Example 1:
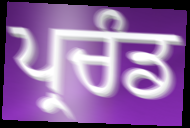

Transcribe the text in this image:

ਪ੍ਰਚੰਡ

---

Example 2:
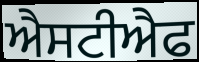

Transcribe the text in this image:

ਐਸਟੀਐਫ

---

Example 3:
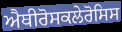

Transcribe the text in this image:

ਐਥੀਰੋਸਕਲੇਰੋਸਿਸ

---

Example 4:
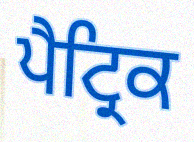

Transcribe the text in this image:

ਪੈਟ੍ਰਿਕ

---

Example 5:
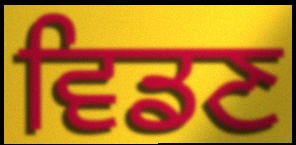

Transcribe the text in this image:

ਵਿਡਣ